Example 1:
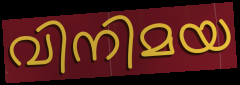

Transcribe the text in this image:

വിനിമയ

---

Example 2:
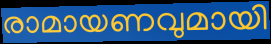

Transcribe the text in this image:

രാമായണവുമായി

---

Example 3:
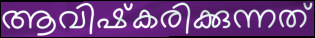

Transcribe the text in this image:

ആവിഷ്‌കരിക്കുന്നത്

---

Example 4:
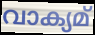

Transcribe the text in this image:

വാക്യമ്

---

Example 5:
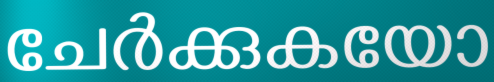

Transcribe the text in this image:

ചേർക്കുകയോ